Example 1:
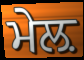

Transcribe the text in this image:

ਮੇਲ਼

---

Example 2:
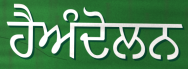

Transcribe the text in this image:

ਹੈਅੰਦੋਲਨ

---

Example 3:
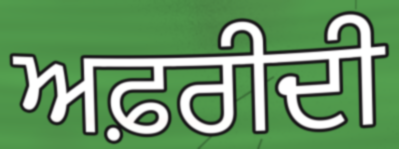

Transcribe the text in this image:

ਅਫ਼ਰੀਦੀ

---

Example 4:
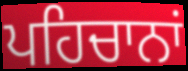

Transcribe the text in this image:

ਪਹਿਚਾਨਾਂ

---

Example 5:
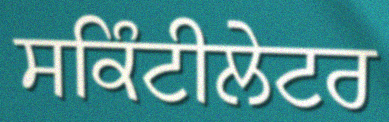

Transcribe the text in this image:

ਸਕਿੰਟੀਲੇਟਰ